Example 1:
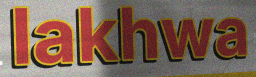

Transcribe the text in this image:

lakhwa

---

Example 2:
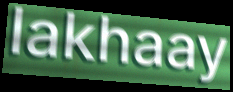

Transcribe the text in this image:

lakhaay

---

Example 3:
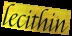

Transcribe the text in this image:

lecithin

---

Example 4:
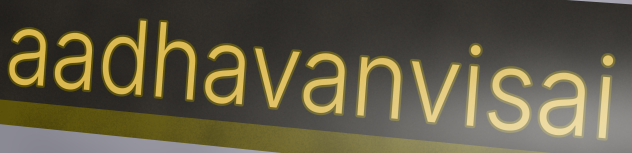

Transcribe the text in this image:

aadhavanvisai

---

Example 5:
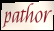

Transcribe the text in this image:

pathor